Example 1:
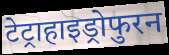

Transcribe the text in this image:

टेट्राहाइड्रोफुरन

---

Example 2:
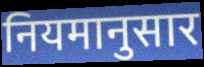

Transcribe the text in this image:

नियमानुसार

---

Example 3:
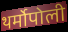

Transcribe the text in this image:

थर्मोपोली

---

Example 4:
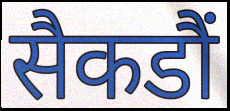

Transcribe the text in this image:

सैकडौं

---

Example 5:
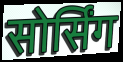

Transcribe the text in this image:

सोर्सिंग